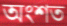
অংশত